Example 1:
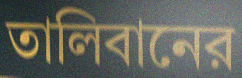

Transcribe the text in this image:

তালিবানের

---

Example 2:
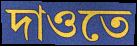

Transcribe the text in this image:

দাওতে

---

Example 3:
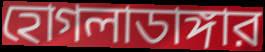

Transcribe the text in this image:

হোগলাডাঙ্গার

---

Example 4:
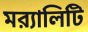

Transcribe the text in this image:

মর‍্যালিটি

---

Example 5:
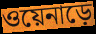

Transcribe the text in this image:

ওয়েনাড়ে